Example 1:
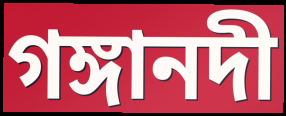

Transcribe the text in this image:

গঙ্গানদী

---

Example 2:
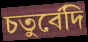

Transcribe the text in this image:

চতুর্বেদি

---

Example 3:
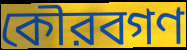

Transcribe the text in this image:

কৌরবগণ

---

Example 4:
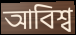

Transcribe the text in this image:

আবিশ্ব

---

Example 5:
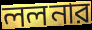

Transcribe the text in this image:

ললনার